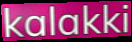
kalakki